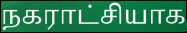
நகராட்சியாக